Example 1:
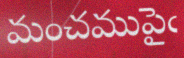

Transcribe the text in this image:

మంచముపైఁ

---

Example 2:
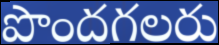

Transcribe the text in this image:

పొందగలరు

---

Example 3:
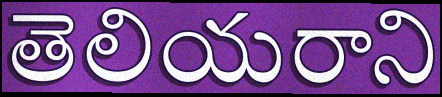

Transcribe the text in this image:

తెలియరాని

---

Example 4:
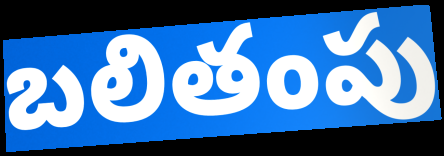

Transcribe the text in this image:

బలితంపు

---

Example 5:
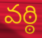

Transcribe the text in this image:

వఠ్ఠి